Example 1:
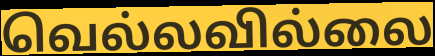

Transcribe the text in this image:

வெல்லவில்லை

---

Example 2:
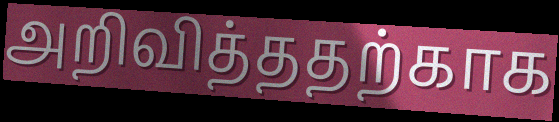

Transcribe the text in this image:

அறிவித்ததற்காக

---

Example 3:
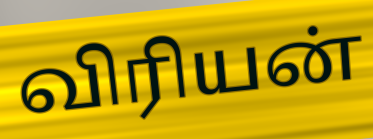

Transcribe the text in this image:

விரியன்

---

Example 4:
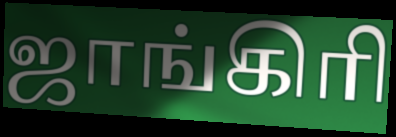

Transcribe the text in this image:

ஜாங்கிரி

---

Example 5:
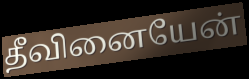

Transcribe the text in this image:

தீவினையேன்